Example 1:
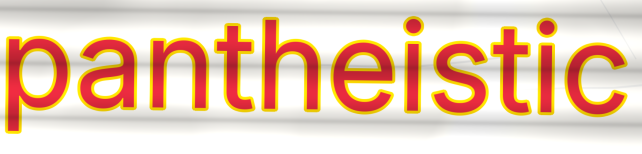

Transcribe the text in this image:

pantheistic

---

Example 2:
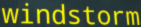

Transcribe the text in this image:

windstorm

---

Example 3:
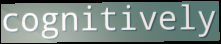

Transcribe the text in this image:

cognitively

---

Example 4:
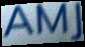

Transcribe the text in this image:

AMJ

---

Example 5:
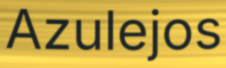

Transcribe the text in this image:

Azulejos